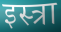
इस्त्रा